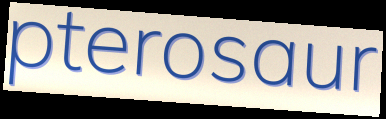
pterosaur